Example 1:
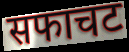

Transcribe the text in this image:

सफाचट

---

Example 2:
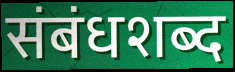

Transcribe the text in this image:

संबंधशब्द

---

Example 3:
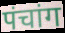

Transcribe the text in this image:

पंचांग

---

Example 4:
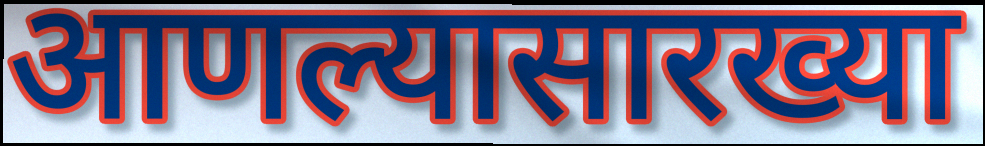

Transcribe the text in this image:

आणल्यासारख्या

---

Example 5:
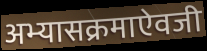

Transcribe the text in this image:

अभ्यासक्रमाऐवजी